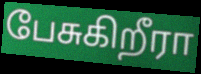
பேசுகிறீரா